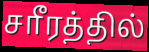
சரீரத்தில்